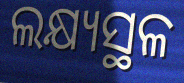
ଲକ୍ଷ୍ୟସ୍ଥଳ